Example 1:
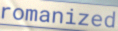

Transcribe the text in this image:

romanized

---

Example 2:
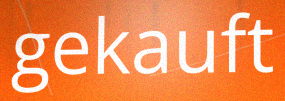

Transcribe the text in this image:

gekauft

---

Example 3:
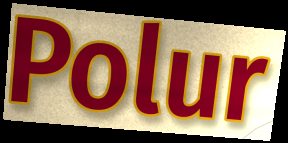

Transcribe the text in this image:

Polur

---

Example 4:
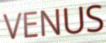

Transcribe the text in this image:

VENUS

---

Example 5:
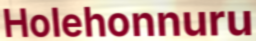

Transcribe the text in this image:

Holehonnuru